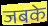
जबके